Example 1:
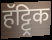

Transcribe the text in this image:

हॅट्ट्रिक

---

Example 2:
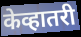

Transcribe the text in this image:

केव्हातरी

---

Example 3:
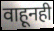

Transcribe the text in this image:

वाहूनही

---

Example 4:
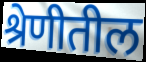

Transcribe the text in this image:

श्रेणीतील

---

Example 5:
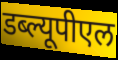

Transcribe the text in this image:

डब्ल्यूपीएल